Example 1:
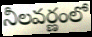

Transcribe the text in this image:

నీలవర్ణంలో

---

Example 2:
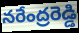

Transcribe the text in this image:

నరేంద్రరెడ్డి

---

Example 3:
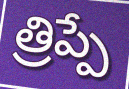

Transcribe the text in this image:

త్రిప్పే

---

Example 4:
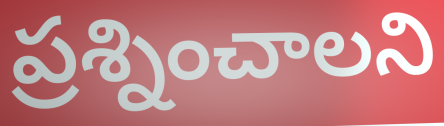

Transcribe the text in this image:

ప్రశ్నించాలని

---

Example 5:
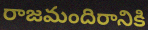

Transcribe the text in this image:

రాజమందిరానికి